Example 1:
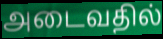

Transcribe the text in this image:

அடைவதில்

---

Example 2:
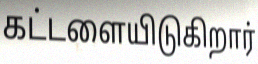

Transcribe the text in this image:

கட்டளையிடுகிறார்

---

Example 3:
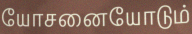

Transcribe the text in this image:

யோசனையோடும்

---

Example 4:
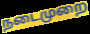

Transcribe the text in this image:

நடைமுறை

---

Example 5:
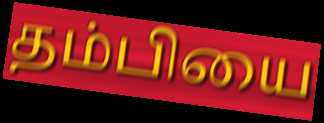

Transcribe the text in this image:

தம்பியை